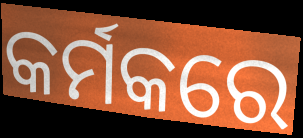
କର୍ମକରେ